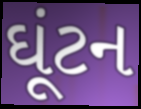
ઘૂંટન